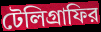
টেলিগ্রাফির